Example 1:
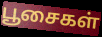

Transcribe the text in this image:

பூசைகள்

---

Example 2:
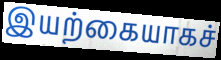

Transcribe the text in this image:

இயற்கையாகச்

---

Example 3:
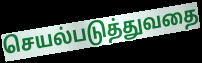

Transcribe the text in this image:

செயல்படுத்துவதை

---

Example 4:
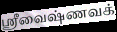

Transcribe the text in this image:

ஸ்ரீவைஷ்ணவக்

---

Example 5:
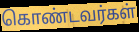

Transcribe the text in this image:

கொண்டவர்கள்